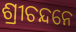
ଶ୍ରୀଚନ୍ଦନେ